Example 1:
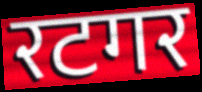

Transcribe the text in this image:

रटगर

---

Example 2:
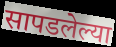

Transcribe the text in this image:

सापडलेल्या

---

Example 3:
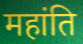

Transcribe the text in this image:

महांति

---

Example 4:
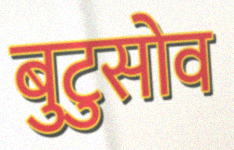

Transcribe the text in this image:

बुटुसोव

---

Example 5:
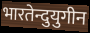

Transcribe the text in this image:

भारतेन्दुयुगीन